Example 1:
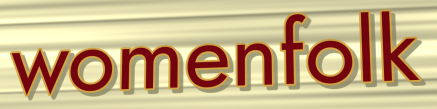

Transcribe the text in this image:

womenfolk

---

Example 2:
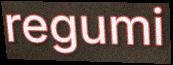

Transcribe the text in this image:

regumi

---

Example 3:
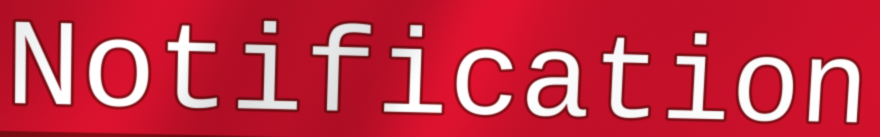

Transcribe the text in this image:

Notification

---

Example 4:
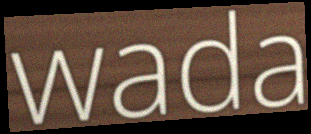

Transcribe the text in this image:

wada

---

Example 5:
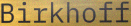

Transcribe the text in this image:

Birkhoff